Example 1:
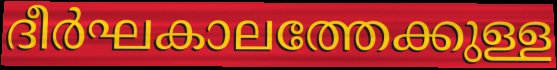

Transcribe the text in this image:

ദീർഘകാലത്തേക്കുള്ള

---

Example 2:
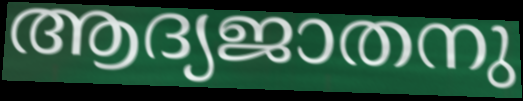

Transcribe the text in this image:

ആദ്യജാതനു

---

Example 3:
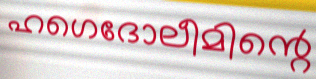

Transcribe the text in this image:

ഹഗെദോലീമിന്റെ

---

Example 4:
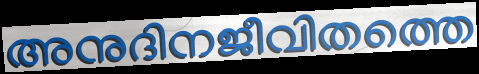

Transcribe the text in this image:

അനുദിനജീവിതത്തെ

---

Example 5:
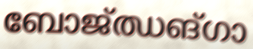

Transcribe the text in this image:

ബോജ്ഝങ്ഗാ